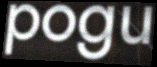
pogu